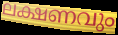
ലക്ഷണവും